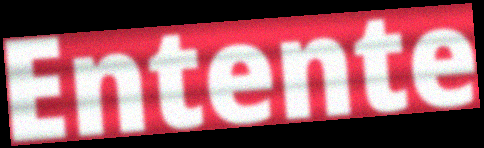
Entente